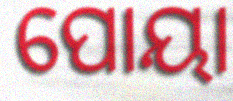
ପୋୟା